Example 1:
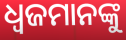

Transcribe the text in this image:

ଧ୍ୱଜମାନଙ୍କୁ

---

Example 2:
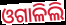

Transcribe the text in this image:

ଓଗାଳିଲି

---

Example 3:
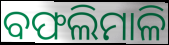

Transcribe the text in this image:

ବଫଲିମାଳି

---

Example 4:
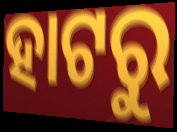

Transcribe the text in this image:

ହାଟରୁ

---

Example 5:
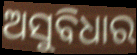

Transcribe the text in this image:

ଅସୁବିଧାର